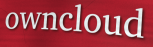
owncloud